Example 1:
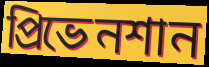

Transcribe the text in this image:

প্রিভেনশান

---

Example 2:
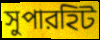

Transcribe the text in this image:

সুপারহিট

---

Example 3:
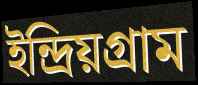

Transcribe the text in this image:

ইন্দ্রিয়গ্রাম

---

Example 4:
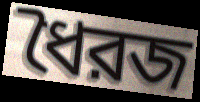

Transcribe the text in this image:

ধৈরজ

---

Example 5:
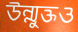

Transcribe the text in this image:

উন্মুক্তও